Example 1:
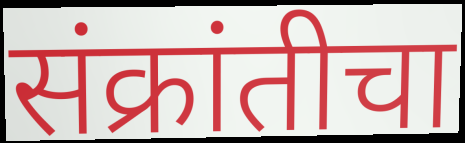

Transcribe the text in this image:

संक्रांतीचा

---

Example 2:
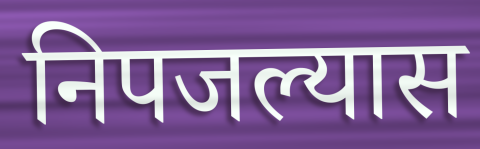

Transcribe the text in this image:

निपजल्यास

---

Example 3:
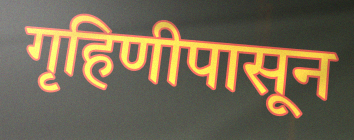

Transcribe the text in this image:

गृहिणीपासून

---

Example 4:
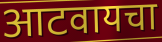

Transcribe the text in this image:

आटवायचा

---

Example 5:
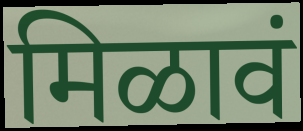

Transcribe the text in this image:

मिळावं